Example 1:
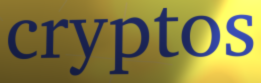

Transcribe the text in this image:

cryptos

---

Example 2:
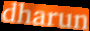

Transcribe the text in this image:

dharun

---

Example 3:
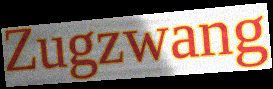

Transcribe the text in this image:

Zugzwang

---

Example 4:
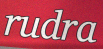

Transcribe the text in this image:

rudra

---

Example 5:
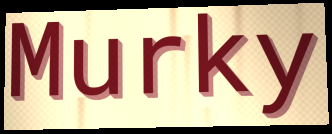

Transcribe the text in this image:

Murky